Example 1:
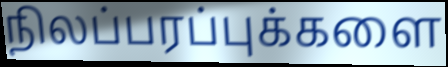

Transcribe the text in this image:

நிலப்பரப்புக்களை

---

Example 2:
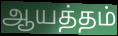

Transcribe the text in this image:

ஆயத்தம்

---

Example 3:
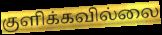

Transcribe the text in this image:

குளிக்கவில்லை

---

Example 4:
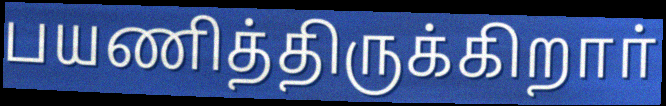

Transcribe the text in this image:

பயணித்திருக்கிறார்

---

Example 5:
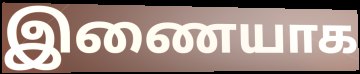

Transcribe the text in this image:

இணையாக